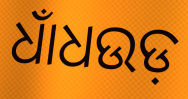
ଧାଁଧଉଡ଼